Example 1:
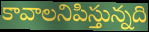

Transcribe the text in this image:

కావాలనిపిస్తున్నది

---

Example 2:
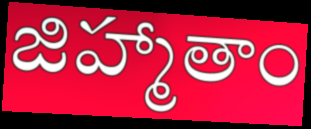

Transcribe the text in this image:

జిహ్మాతాం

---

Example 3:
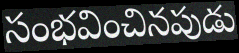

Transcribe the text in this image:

సంభవించినపుడు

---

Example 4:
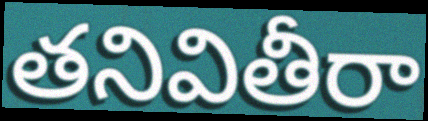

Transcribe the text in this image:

తనివితీరా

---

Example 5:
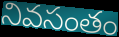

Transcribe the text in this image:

నివసంతం